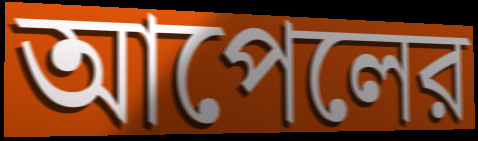
আপেলের